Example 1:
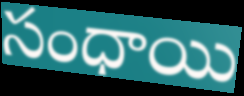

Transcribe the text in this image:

సంధాయి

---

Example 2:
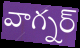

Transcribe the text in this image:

వాగ్నర్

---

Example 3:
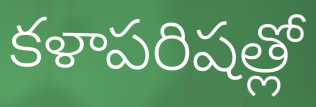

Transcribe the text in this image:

కళాపరిషత్లో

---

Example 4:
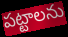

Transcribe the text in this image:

పట్టాలను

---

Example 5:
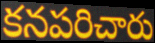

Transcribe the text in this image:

కనపరిచారు